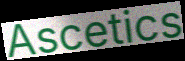
Ascetics